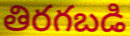
తిరగబడి